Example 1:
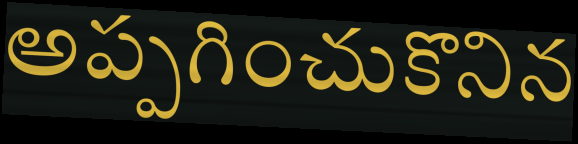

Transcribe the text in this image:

అప్పగించుకొనిన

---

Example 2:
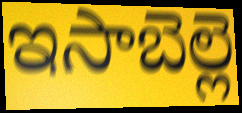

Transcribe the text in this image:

ఇసాబెల్లె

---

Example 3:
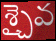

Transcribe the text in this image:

శ్చైవ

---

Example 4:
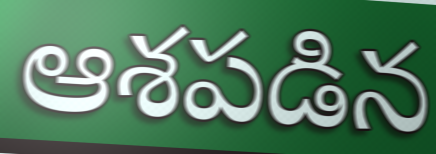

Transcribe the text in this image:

ఆశపడిన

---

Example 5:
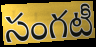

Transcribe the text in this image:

సంగటీ